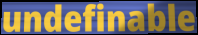
undefinable